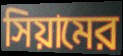
সিয়ামের